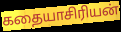
கதையாசிரியன்